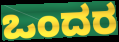
ಒಂದರ